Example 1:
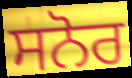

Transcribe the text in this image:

ਸਨੋਰ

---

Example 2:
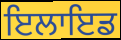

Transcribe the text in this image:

ਇਲਾਇਡ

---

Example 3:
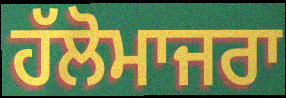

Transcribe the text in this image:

ਹੱਲੋਮਾਜਰਾ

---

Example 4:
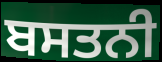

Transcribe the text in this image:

ਬਸਤਨੀ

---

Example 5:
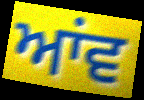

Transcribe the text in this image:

ਆਂਵ